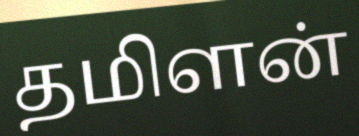
தமிளன்